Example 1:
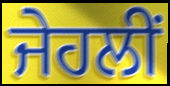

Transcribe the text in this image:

ਜੇਹਲੀਂ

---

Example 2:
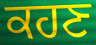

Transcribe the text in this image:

ਕਹਣ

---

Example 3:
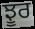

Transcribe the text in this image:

ਝੂਰ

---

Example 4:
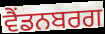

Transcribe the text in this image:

ਵੈਂਡਨਬਰਗ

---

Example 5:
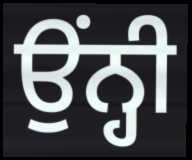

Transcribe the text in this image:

ਉਂਨ੍ਹੀ